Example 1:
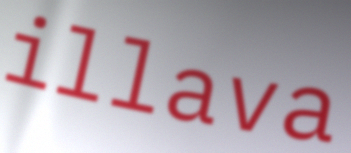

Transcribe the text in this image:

illava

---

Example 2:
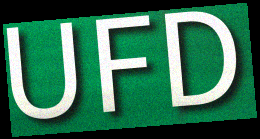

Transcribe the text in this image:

UFD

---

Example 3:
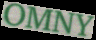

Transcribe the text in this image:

OMNY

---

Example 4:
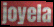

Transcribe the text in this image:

joyela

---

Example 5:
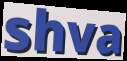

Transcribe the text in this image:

shva